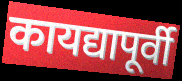
कायद्यापूर्वी